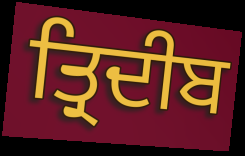
ਤ੍ਰਿਦੀਬ